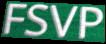
FSVP